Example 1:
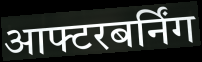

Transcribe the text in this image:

आफ्टरबर्निंग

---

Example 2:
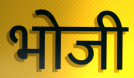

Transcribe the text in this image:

भोजी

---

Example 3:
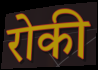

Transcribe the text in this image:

रोकी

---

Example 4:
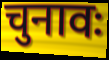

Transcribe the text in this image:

चुनावः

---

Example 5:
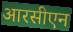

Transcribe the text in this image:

आरसीएन